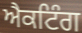
ਐਕਟਿੰਗ